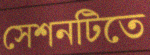
সেশনটিতে